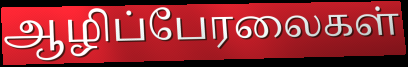
ஆழிப்பேரலைகள்